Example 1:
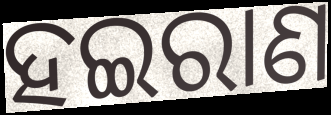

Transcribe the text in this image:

ହଇରାଣ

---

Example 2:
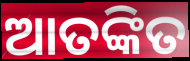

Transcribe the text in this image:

ଆତଙ୍କିତ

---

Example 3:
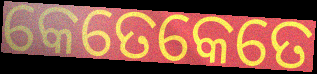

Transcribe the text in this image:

କେତେକେତେ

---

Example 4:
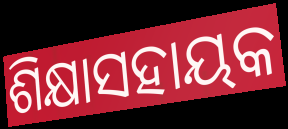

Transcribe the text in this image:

ଶିକ୍ଷାସହାୟକ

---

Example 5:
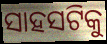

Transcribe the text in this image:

ସାହସଟିକୁ